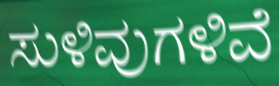
ಸುಳಿವುಗಳಿವೆ